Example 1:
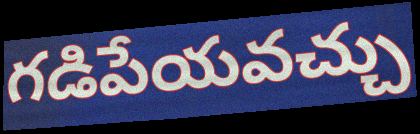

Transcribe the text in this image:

గడిపేయవచ్చు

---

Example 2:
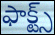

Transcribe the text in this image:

ఫాక్ట్స్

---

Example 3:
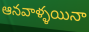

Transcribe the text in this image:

ఆనవాళ్ళయినా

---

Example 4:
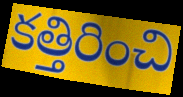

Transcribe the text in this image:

కత్తిరించి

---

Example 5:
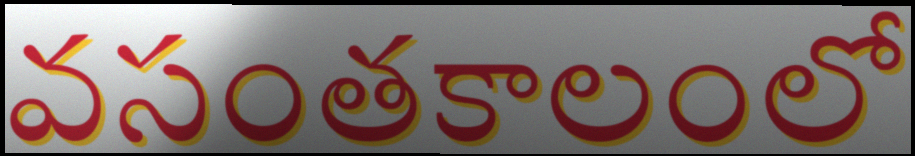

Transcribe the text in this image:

వసంతకాలంలో